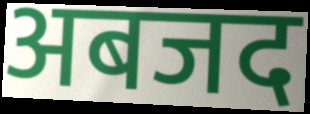
अबजद